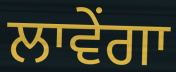
ਲਾਵੇਂਗਾ